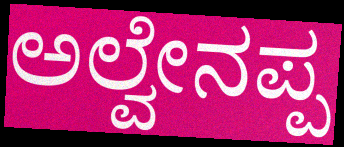
ಅಲ್ವೇನಪ್ಪ